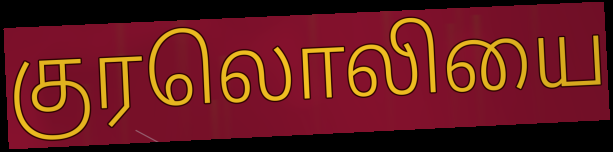
குரலொலியை